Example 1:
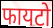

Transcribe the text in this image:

फायटो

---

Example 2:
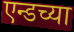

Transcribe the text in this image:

एन्डच्या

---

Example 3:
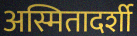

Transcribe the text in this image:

अस्मितादर्शी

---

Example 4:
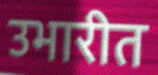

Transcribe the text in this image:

उभारीत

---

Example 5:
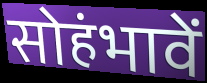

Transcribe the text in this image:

सोहंभावें